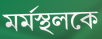
মর্মস্থলকে